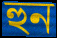
হুন